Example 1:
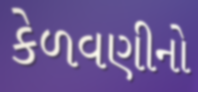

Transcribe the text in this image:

કેળવણીનો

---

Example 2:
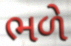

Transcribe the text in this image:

ભળે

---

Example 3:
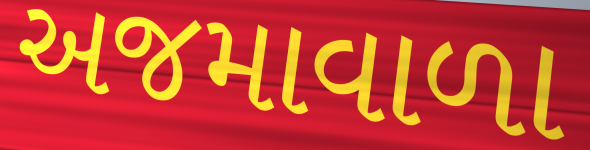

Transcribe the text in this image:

અજમાવાળા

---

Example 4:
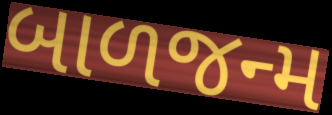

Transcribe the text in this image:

બાળજન્મ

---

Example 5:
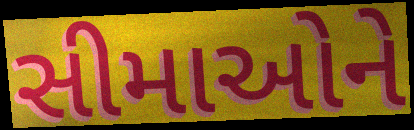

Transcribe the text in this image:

સીમાઓને